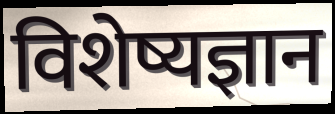
विशेष्यज्ञान